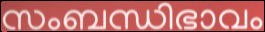
സംബന്ധിഭാവം